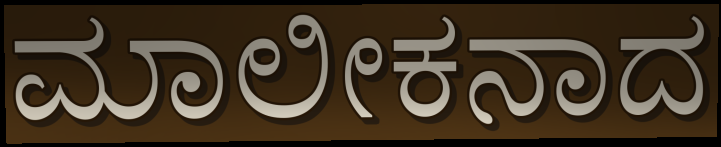
ಮಾಲೀಕನಾದ